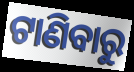
ଟାଣିବାରୁ